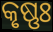
କୃଷ୍ଣଃ